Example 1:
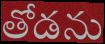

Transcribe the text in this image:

తోడను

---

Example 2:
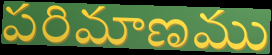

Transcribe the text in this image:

పరిమాణము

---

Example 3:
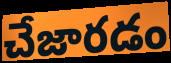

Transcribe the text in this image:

చేజారడం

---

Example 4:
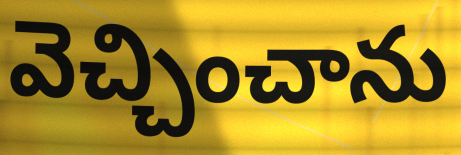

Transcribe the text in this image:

వెచ్చించాను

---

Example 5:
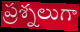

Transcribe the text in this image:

ప్రశ్నలుగా